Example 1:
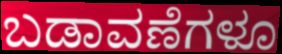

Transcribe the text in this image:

ಬಡಾವಣೆಗಳೂ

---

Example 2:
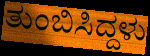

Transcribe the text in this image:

ತುಂಬಿಸಿದ್ದಳು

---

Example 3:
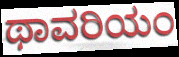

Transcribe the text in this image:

ಥಾವರಿಯಂ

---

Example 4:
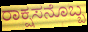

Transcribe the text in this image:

ರಾಕ್ಷಸನೊಬ್ಬ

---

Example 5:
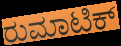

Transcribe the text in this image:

ರುಮಾಟಿಕ್